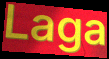
Laga